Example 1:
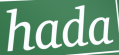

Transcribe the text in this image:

hada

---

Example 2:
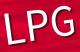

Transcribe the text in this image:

LPG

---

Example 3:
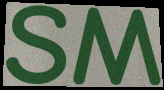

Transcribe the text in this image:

SM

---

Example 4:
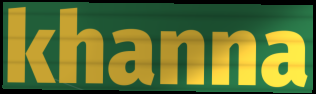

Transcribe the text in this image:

khanna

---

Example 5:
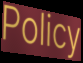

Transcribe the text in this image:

Policy